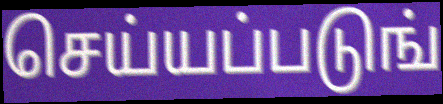
செய்யப்படுங்